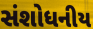
સંશોધનીય